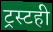
ट्रस्टही